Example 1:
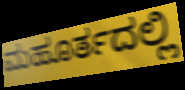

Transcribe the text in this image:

ಮಹೂರ್ತದಲ್ಲಿ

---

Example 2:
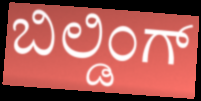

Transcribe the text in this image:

ಬಿಲ್ಡಿಂಗ್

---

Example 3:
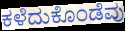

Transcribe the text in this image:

ಕಳೆದುಕೊಂಡೆವು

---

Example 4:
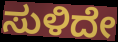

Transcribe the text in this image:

ಸುಳಿದೇ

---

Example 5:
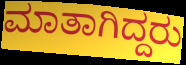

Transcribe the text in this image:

ಮಾತಾಗಿದ್ದರು